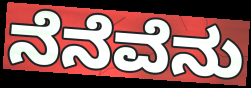
ನೆನೆವೆನು